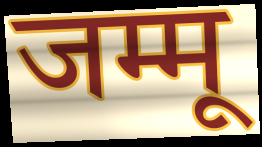
जम्मू